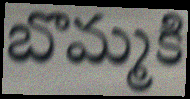
బొమ్మకి